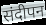
संदीपन